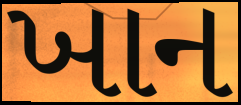
ખાન